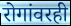
रोगांवरही